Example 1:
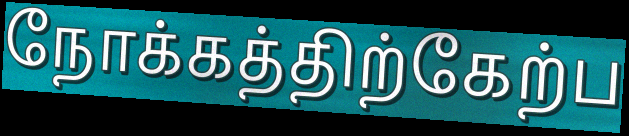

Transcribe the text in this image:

நோக்கத்திற்கேற்ப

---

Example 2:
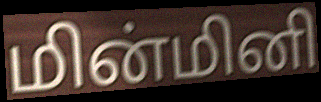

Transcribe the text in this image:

மின்மினி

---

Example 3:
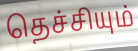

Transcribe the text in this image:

தெச்சியும்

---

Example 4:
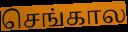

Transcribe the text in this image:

செங்கால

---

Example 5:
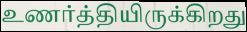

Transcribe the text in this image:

உணர்த்தியிருக்கிறது